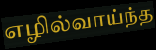
எழில்வாய்ந்த